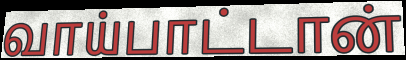
வாய்பாட்டான்